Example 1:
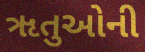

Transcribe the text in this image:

ૠતુઓની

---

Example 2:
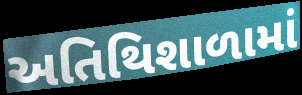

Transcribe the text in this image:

અતિથિશાળામાં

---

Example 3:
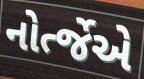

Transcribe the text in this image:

નોર્ત્જેએ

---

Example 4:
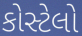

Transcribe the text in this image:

કોસ્ટેલો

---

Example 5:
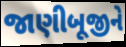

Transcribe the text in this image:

જાણીબૂજીને